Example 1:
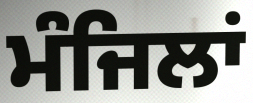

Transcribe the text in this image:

ਮੰਜਿਲਾਂ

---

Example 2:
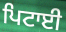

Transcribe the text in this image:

ਪਿਟਾਈ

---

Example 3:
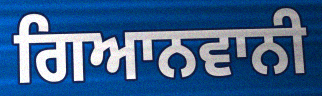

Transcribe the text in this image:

ਗਿਆਨਵਾਨੀ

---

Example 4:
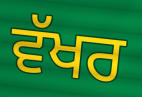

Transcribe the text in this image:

ਵੱਖਰ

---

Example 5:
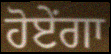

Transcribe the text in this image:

ਹੋਏਂਗਾ